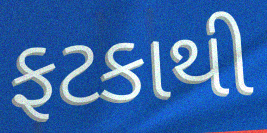
ફટકાથી